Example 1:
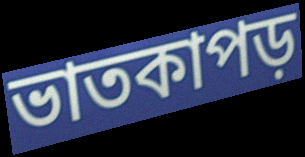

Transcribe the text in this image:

ভাতকাপড়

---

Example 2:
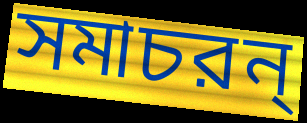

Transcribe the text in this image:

সমাচরন্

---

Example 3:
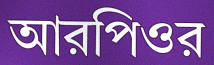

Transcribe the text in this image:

আরপিওর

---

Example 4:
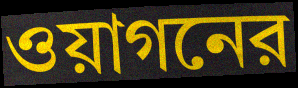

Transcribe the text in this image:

ওয়াগনের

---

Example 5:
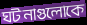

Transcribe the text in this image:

ঘটনাগুলোকে